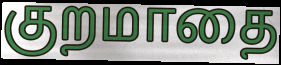
குறமாதை